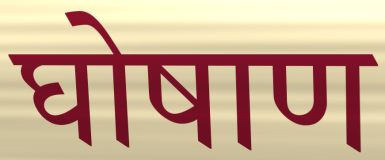
घोषाण